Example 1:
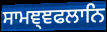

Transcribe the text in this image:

ਸਾਮਞ੍ਞਫਲਾਨਿ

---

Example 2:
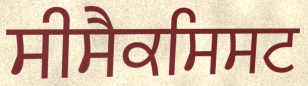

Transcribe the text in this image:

ਸੀਸੈਕਸਿਸਟ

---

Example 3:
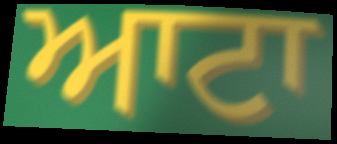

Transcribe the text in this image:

ਆਟਾ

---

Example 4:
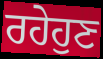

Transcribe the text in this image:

ਰਹੇਹੁਣ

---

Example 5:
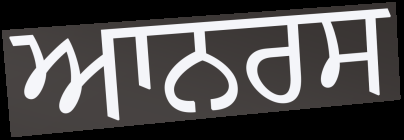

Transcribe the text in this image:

ਆਨਰਸ